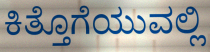
ಕಿತ್ತೊಗೆಯುವಲ್ಲಿ